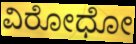
ವಿರೋಧೋ